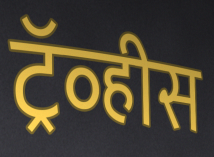
ट्रॅव्हीस